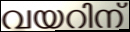
വയറിന്